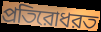
প্রতিরোধরত